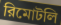
রিমোটলি